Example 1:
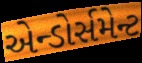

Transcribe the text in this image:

એન્ડોર્સમેન્ટ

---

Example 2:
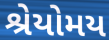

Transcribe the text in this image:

શ્રેયોમય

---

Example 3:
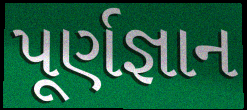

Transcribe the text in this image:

પૂર્ણજ્ઞાન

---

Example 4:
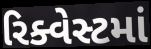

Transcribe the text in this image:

રિક્વેસ્ટમાં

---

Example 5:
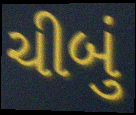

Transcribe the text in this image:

ચીબું